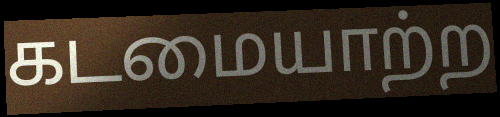
கடமையாற்ற